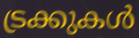
ട്രക്കുകൾ